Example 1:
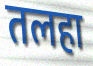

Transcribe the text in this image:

तलहा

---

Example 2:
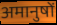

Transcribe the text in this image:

अमानुषों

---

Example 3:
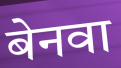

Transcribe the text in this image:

बेनवा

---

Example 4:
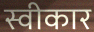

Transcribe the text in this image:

स्‍वीकार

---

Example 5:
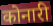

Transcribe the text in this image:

कोनारी